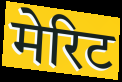
मेरिट